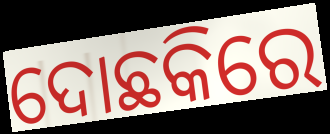
ଦୋଛକିରେ